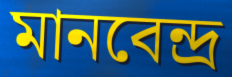
মানবেন্দ্র